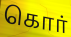
கொர்